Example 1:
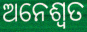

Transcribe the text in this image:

ଅନେଶ୍ଵତ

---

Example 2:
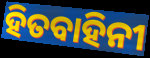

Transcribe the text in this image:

ହିତବାହିନୀ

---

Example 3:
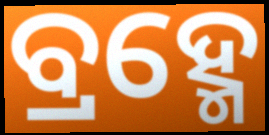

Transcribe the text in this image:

ବ୍ରହ୍ମେ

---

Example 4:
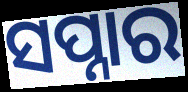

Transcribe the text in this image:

ସପ୍ନାର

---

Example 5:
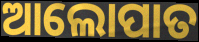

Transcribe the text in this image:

ଆଲୋପାତ